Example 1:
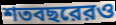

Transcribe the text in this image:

শতবছরেরও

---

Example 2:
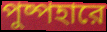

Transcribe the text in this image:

পুষ্পহারে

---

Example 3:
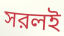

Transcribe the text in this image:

সরলই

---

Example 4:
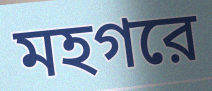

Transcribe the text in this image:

মহগরে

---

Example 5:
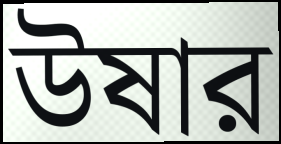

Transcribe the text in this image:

উষার